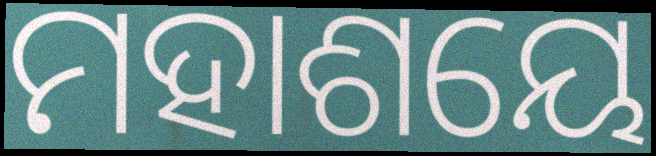
ମହାଶୟେ